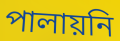
পালায়নি